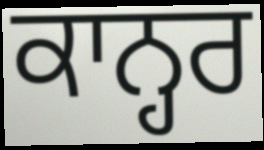
ਕਾਨ੍ਹਰ